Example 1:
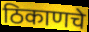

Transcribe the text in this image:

ठिकाणचे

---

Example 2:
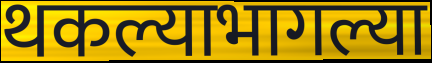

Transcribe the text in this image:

थकल्याभागल्या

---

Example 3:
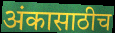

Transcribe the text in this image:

अंकासाठीच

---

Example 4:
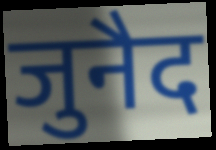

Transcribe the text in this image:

जुनैद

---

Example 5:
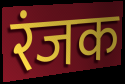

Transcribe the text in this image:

रंजक